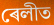
ৰেলীত